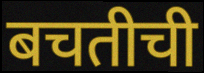
बचतीची